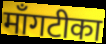
माँगटीका